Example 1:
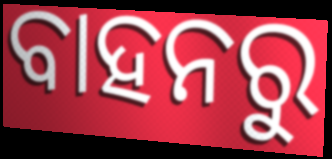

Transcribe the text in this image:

ବାହନରୁ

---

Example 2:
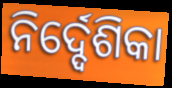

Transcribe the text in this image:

ନିର୍ଦ୍ଦେଶିକା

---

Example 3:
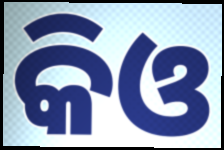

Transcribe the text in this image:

କିଓ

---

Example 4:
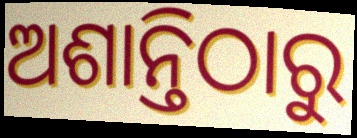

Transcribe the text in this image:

ଅଶାନ୍ତିଠାରୁ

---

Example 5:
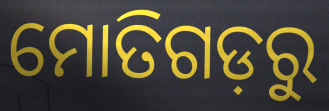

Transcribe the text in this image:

ମୋତିଗଡ଼ରୁ